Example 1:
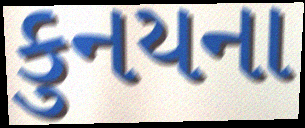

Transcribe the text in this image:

કુનયના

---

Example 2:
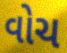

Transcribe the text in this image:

વોચ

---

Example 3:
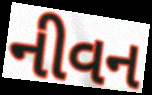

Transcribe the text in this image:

નીવન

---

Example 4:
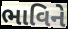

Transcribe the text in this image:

ભાવિને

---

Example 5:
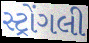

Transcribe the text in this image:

સ્ટ્રોંગલી